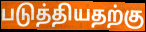
படுத்தியதற்கு